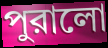
পুরালো